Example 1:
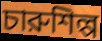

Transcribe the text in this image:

চারুশিল্প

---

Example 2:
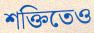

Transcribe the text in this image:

শক্তিতেও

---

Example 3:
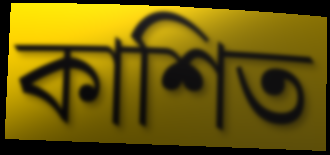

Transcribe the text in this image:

কাশিত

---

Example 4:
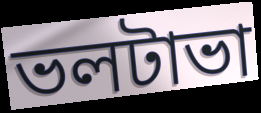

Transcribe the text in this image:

ভলটাভা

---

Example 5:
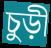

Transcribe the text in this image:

চুড়ী